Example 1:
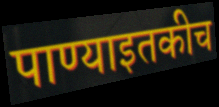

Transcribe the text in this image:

पाण्याइतकीच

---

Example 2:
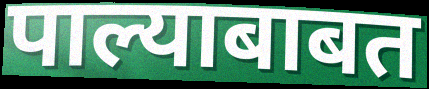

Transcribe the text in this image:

पाल्याबाबत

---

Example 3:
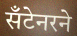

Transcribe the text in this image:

सँटेनरने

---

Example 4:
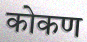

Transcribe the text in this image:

कोकण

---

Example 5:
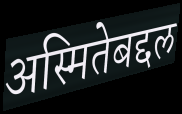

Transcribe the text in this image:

अस्मितेबद्दल